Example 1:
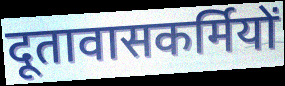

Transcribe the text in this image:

दूतावासकर्मियों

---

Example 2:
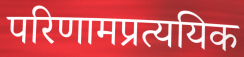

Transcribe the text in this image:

परिणामप्रत्ययिक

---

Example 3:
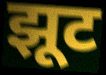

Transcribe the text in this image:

झूट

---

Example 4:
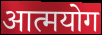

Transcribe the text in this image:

आत्मयोग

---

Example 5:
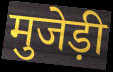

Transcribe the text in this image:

मुजेड़ी